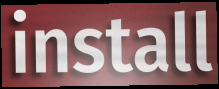
install